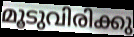
മൂടുവിരിക്കു